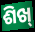
ଶିଖ୍